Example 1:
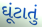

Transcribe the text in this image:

ઘૂંટાતું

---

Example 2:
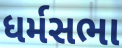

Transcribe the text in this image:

ધર્મસભા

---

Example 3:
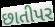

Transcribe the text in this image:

છાતીપર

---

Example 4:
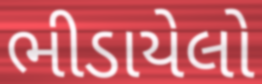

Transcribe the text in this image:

ભીડાયેલો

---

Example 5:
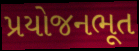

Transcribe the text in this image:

પ્રયોજનભૂત